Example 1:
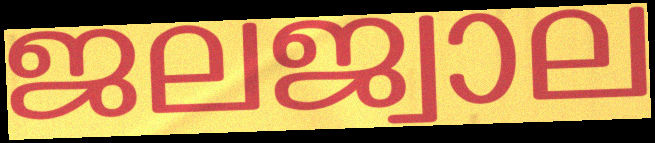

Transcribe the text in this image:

ജലജ്വാല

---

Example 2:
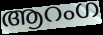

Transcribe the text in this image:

ആറംഗ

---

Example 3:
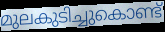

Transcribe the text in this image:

മുലകുടിച്ചുകൊണ്ട്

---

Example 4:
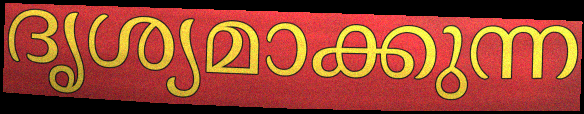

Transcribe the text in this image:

ദൃശ്യമാക്കുന്ന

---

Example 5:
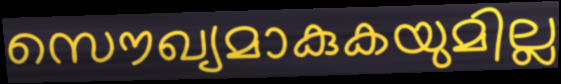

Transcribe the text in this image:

സൌഖ്യമാകുകയുമില്ല